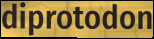
diprotodon